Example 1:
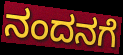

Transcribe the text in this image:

ನಂದನಗೆ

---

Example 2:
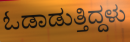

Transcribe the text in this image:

ಓಡಾಡುತ್ತಿದ್ದಳು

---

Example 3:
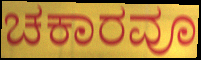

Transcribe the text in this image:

ಚಕಾರವೂ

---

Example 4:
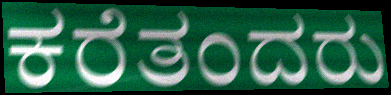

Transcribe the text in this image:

ಕರೆತಂದರು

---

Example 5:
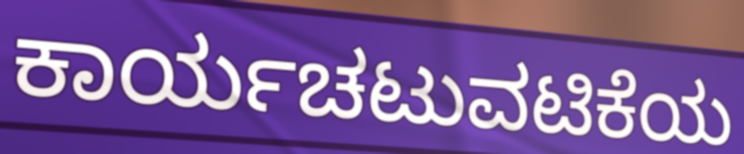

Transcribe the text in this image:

ಕಾರ್ಯಚಟುವಟಿಕೆಯ